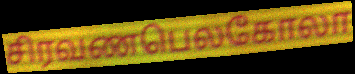
சிரவணபெலகோலா